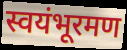
स्वयंभूरमण